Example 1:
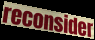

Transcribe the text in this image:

reconsider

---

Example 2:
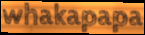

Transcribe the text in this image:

whakapapa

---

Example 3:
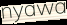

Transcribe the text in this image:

nyawa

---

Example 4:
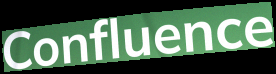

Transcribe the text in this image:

Confluence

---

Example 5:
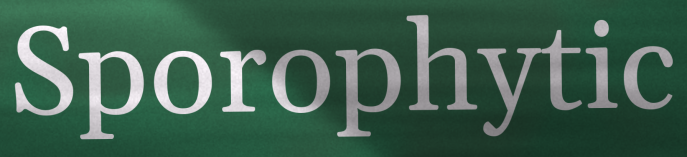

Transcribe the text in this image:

Sporophytic